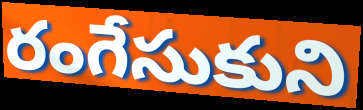
రంగేసుకుని